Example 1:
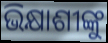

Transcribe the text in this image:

ଭିକ୍ଷାଶୀଙ୍କୁ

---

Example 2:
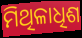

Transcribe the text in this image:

ମିଥିଳାଧିଶ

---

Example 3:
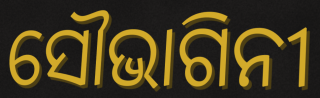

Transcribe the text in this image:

ସୌଭାଗିନୀ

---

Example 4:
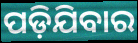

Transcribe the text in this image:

ପଡ଼ିଯିବାର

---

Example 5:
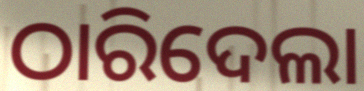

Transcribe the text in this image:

ଠାରିଦେଲା